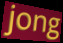
jong